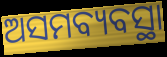
ଅସମବ୍ୟବସ୍ଥା